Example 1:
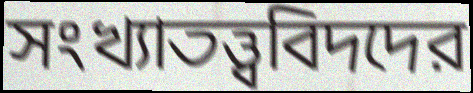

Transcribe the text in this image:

সংখ্যাতত্ত্ববিদদের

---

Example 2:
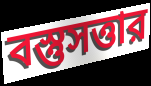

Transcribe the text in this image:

বস্তুসত্তার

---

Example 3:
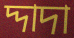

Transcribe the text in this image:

দ্দাদা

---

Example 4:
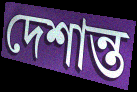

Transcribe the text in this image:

দেশান্ত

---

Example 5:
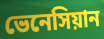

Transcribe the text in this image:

ভেনেসিয়ান